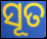
ସୂତ